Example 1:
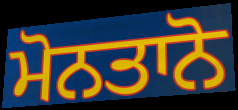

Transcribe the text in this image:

ਮੋਨਤਾਨੋ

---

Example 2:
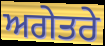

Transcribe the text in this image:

ਅਗੇਤਰੇ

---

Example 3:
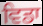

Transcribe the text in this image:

ਵਿਡਾ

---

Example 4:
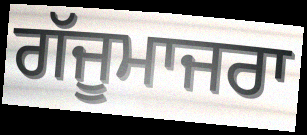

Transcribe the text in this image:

ਗੱਜੂਮਾਜਰਾ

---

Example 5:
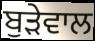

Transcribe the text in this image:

ਬੁੜੇਵਾਲ